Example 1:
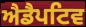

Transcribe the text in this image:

ਐਡੈਪਟਿਵ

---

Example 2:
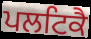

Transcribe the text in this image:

ਪਲਟਿਕੈ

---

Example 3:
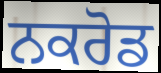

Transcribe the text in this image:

ਨਕਰੋਡ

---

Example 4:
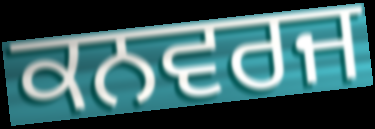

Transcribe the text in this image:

ਕਨਵਰਜ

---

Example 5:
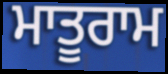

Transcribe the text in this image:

ਮਾਤੂਰਾਮ